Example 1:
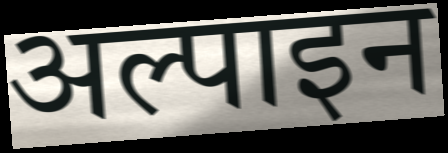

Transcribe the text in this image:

अल्पाइन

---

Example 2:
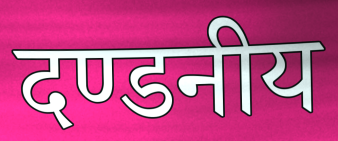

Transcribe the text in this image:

दण्डनीय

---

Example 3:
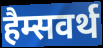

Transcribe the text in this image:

हैम्सवर्थ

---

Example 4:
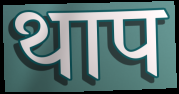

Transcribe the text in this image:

थाप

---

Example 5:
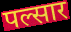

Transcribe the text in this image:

पल्सार